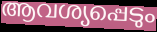
ആവശ്യപ്പെടും